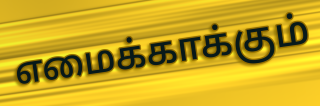
எமைக்காக்கும்